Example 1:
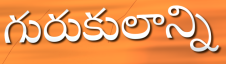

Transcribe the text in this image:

గురుకులాన్ని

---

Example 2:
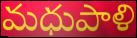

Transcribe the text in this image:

మధుపాళి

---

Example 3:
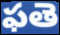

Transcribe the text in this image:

ఫతె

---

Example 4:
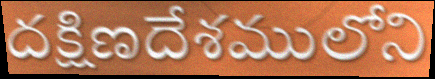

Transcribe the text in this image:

దక్షిణదేశములోని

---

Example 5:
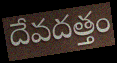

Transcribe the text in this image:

దేవదత్తం